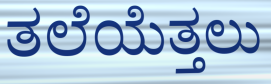
ತಲೆಯೆತ್ತಲು